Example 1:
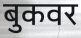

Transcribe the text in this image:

बुकवर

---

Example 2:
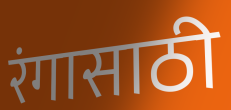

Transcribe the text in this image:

रंगासाठी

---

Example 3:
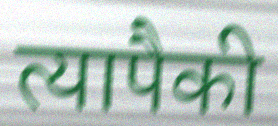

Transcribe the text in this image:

त्यापैकी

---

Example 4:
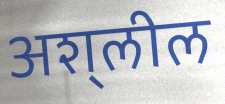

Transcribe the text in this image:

अश्लील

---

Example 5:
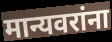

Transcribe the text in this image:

मान्यवरांना